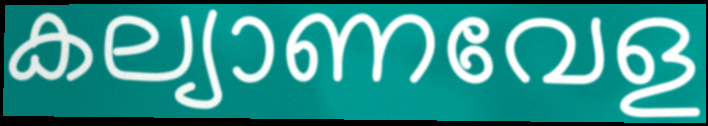
കല്യാണവേള